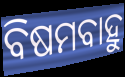
ବିଷମବାହୁ